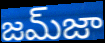
జమ్‌జా